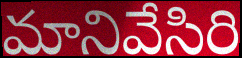
మానివేసిరి